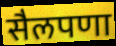
सैलपणा